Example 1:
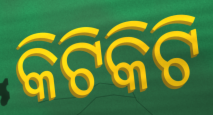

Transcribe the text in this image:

କିଟିକିଟି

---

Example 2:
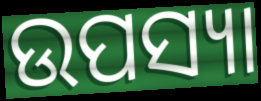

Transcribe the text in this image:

ଉପସ୍ୟା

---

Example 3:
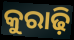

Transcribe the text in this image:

କୁରାଢ଼ି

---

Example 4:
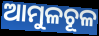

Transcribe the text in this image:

ଆମୁଳଚୂଳ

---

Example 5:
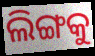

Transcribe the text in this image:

ଲିଙ୍ଗକୁ